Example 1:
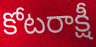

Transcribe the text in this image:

కోటరాక్షీ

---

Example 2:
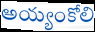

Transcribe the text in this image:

అయ్యంకోలి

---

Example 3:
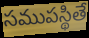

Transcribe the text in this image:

సముపస్థితే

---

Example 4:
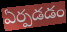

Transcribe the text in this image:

ఏర్పడడం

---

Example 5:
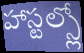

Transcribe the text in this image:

హాస్టల్స్లో